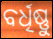
ବର୍ଧିଷ୍ଣୁ